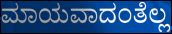
ಮಾಯವಾದಂತೆಲ್ಲ